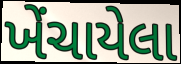
ખેંચાયેલા